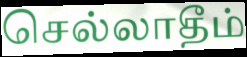
செல்லாதீம்